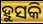
ହୁସକି